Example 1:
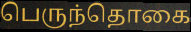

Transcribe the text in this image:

பெருந்தொகை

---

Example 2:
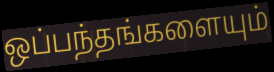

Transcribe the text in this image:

ஒப்பந்தங்களையும்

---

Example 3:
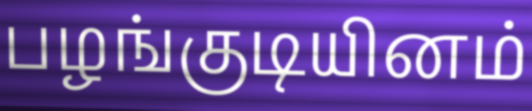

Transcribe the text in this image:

பழங்குடியினம்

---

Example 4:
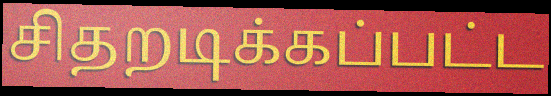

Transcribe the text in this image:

சிதறடிக்கப்பட்ட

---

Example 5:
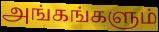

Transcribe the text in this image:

அங்கங்களும்